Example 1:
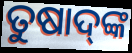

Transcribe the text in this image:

ତୁଷାଦ୍‌ଙ୍କ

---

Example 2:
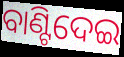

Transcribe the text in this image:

ବାଣ୍ଟିଦେଇ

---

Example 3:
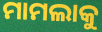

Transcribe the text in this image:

ମାମଲାକୁ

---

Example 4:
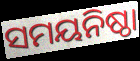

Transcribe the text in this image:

ସମୟନିଷ୍ଠା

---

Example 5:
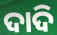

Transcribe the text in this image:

ଦାଦି